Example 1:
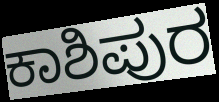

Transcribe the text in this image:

ಕಾಶಿಪುರ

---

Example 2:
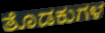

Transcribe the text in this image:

ತೊಡಕುಗಳ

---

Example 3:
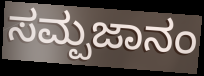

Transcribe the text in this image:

ಸಮ್ಪಜಾನಂ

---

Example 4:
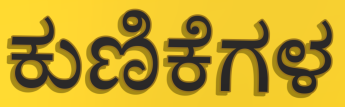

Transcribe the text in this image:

ಕುಣಿಕೆಗಳ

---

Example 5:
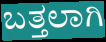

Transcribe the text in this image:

ಬತ್ತಲಾಗಿ